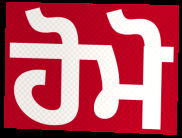
ਹੋਮੋ